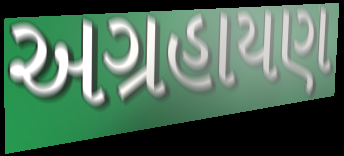
અગ્રહાયણ